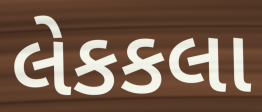
લેકકલા